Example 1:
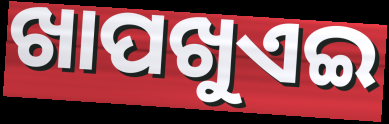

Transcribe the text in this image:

ଖାପଖୁଏଇ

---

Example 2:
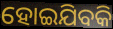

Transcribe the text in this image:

ହୋଇଯିବକି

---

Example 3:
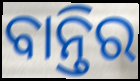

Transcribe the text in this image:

ବାନ୍ତିର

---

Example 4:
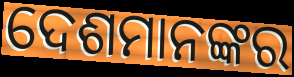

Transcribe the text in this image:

ଦେଶମାନଙ୍କର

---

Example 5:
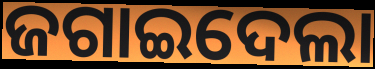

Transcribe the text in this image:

ଜଗାଇଦେଲା